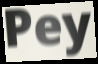
Pey